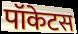
पॉकेटस